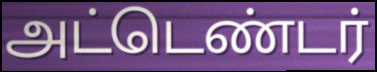
அட்டெண்டர்